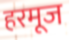
हरमूज